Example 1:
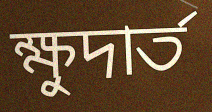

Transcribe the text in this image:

ক্ষুদার্ত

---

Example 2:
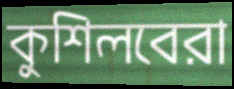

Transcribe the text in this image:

কুশিলবেরা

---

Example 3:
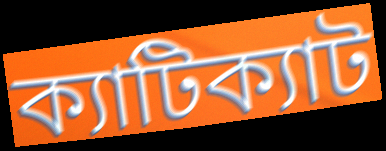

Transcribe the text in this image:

ক্যাটিক্যাট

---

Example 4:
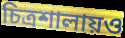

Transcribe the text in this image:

চিত্রশালায়ও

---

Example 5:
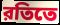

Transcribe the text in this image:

রতিতে